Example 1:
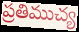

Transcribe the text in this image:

ప్రతిముచ్య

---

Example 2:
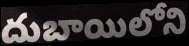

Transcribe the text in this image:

దుబాయిలోని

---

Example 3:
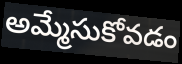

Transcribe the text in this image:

అమ్మేసుకోవడం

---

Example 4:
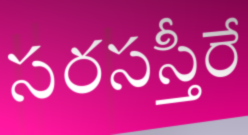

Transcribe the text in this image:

సరసస్తీరే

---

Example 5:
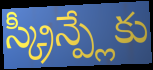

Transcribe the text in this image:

స్క్రీన్ప్లేకు